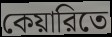
কেয়ারিতে